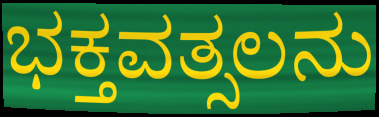
ಭಕ್ತವತ್ಸಲನು